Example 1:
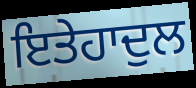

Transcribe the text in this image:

ਇਤੇਹਾਦੁਲ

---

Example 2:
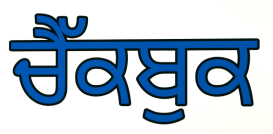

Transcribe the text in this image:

ਚੈੱਕਬੁਕ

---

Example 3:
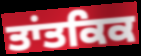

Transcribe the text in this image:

ਤਾਂਤਕਿਕ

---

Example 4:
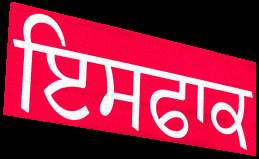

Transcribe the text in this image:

ਇਸਫਾਕ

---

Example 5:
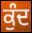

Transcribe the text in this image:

ਕੁੰਦ